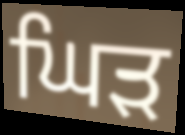
ਘਿੜ